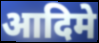
आदिमे